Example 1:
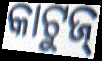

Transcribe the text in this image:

କାଟୁଜ୍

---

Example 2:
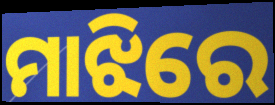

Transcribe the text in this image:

ମାଝିରେ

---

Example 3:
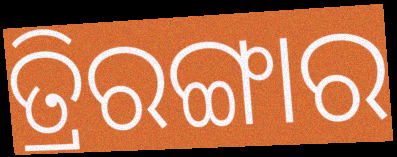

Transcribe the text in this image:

ତ୍ରିରଙ୍ଗାର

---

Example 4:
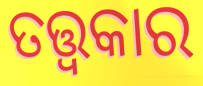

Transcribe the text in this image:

ତତ୍ତ୍ୱକାର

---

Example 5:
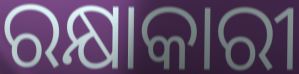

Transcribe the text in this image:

ରକ୍ଷାକାରୀ